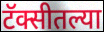
टॅक्सीतल्या